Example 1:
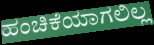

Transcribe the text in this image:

ಹಂಚಿಕೆಯಾಗಲಿಲ್ಲ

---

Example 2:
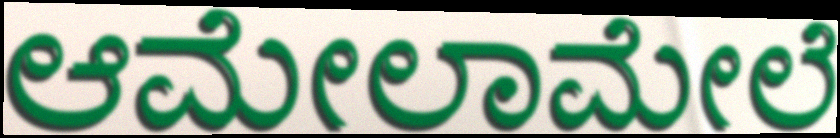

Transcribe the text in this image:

ಆಮೇಲಾಮೇಲೆ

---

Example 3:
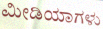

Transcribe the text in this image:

ಮೀಡಿಯಾಗಳು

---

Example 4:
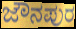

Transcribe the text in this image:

ಜೌನಪುರ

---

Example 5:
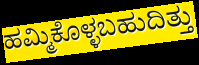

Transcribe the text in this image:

ಹಮ್ಮಿಕೊಳ್ಳಬಹುದಿತ್ತು